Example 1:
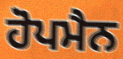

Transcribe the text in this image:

ਹੋਪਮੈਨ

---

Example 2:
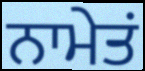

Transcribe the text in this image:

ਨਾਮੇਤਂ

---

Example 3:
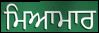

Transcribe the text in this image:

ਮਿਆਮਾਰ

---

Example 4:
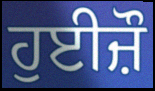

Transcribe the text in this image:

ਹੁਈਜ਼ੌ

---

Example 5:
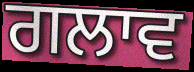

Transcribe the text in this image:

ਗਲਾਵ